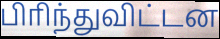
பிரிந்துவிட்டன